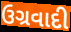
ઉગ્રવાદી